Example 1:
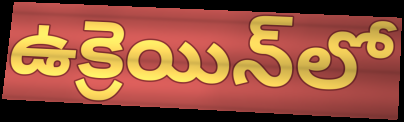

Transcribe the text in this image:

ఉక్రెయిన్‌లో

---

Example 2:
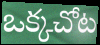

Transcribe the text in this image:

ఒక్కచోట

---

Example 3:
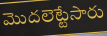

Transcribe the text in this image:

మొదలెట్టేసారు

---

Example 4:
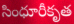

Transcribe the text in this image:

సింధూరీకృత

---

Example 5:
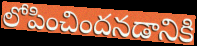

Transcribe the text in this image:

లోపించిందనడానికి